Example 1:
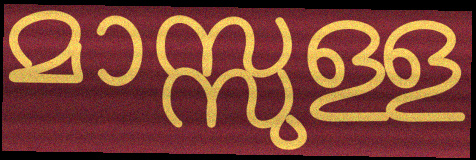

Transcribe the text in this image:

മാസ്സുള്ള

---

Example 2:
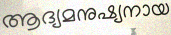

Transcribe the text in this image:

ആദ്യമനുഷ്യനായ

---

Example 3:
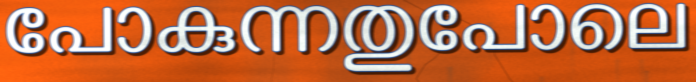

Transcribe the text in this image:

പോകുന്നതുപോലെ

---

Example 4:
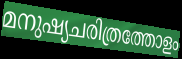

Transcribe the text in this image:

മനുഷ്യചരിത്രത്തോളം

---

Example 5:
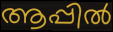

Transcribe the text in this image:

ആപ്പിൽ